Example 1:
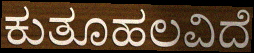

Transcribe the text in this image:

ಕುತೂಹಲವಿದೆ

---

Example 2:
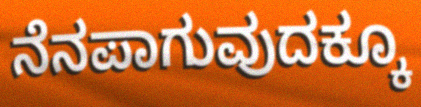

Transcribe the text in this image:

ನೆನಪಾಗುವುದಕ್ಕೂ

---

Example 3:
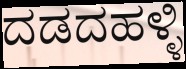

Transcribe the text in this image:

ದಡದಹಳ್ಳಿ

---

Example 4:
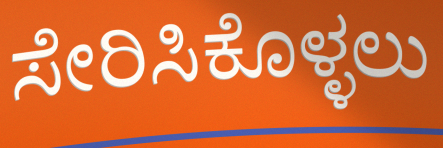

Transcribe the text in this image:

ಸೇರಿಸಿಕೊಳ್ಳಲು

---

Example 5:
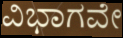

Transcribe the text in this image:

ವಿಭಾಗವೇ